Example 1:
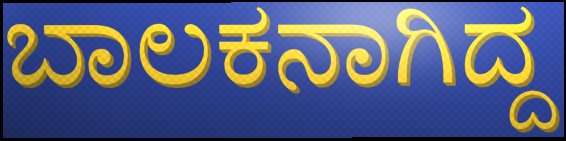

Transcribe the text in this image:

ಬಾಲಕನಾಗಿದ್ದ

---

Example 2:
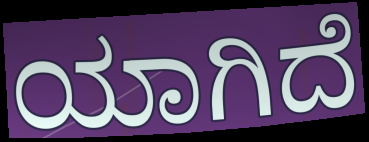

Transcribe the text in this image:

ಯಾಗಿದೆ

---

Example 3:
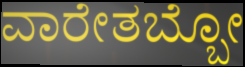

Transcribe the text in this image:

ವಾರೇತಬ್ಬೋ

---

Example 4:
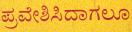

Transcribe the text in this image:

ಪ್ರವೇಶಿಸಿದಾಗಲೂ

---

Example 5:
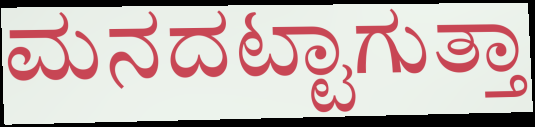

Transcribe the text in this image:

ಮನದಟ್ಟಾಗುತ್ತಾ